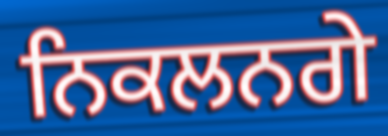
ਨਿਕਲਨਗੇ